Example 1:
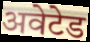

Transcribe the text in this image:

अवेटेड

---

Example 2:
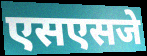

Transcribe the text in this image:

एसएसजे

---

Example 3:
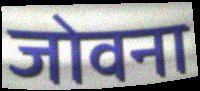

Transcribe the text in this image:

जोवना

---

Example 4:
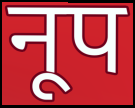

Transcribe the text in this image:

नूप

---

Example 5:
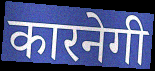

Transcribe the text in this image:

कारनेगी